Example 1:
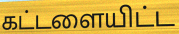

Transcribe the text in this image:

கட்டளையிட்ட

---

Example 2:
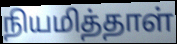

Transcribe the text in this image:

நியமித்தாள்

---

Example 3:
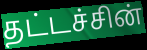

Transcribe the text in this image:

தட்டச்சின்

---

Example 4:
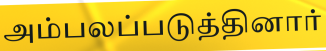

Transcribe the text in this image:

அம்பலப்படுத்தினார்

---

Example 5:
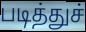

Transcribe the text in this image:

படித்துச்